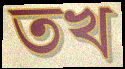
তখ